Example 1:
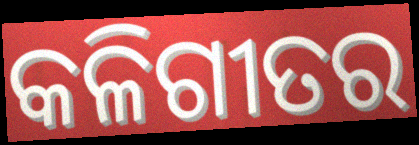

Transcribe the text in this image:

କଳିଗୀତର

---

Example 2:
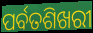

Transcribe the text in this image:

ପର୍ବତଶିଖରୀ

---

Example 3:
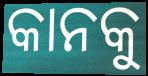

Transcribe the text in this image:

କାନକୁ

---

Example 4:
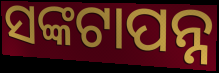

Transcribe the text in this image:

ସଙ୍କଟାପନ୍ନ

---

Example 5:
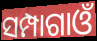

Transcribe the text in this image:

ସମ୍ପାଗାଓଁ